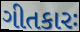
ગીતકારઃ